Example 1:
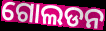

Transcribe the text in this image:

ଗୋଲଡନ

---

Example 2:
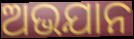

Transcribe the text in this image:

ଅଭଯାନ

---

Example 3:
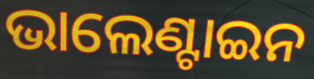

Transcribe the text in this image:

ଭାଲେଣ୍ଟାଇନ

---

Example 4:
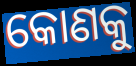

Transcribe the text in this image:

କୋଣକୁ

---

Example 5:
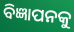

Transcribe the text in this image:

ବିଜ୍ଞାପନକୁ